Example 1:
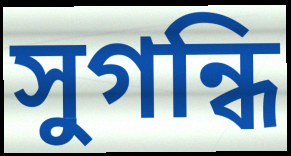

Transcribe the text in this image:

সুগন্ধি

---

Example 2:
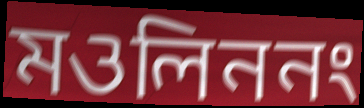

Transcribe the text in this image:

মওলিননং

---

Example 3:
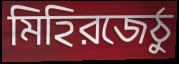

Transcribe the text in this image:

মিহিরজেঠু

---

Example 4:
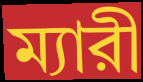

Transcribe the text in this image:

ম্যারী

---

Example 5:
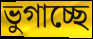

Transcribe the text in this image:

ভুগাচ্ছে